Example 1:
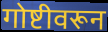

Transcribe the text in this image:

गोष्टीवरून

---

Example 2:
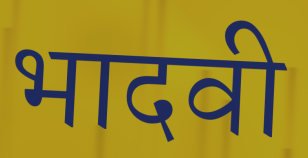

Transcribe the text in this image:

भादवी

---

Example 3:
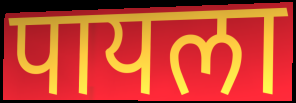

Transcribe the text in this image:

पायला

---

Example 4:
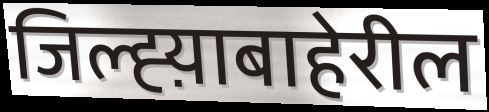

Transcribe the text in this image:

जिल्ह्य़ाबाहेरील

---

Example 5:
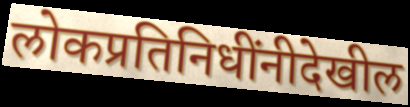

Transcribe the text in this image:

लोकप्रतिनिधींनीदेखील